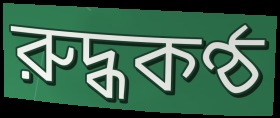
রুদ্ধকণ্ঠ